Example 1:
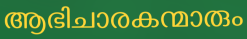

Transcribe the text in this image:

ആഭിചാരകന്മാരും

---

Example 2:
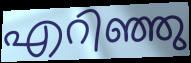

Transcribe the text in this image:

എറിഞ്ഞു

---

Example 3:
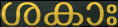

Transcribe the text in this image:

ശകാഃ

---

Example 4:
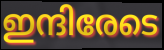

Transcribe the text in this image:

ഇന്ദിരേടെ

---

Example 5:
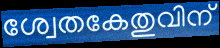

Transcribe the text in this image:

ശ്വേതകേതുവിന്